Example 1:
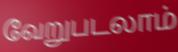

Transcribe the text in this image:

வேறுபடலாம்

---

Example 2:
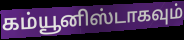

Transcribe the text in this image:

கம்யூனிஸ்டாகவும்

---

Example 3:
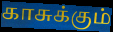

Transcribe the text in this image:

காசுக்கும்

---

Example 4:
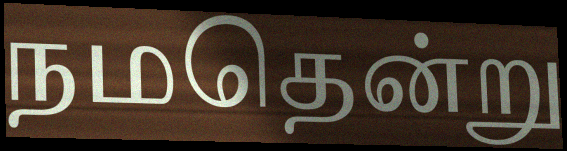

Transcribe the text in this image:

நமதென்று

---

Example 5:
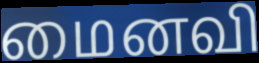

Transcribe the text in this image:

மைனவி